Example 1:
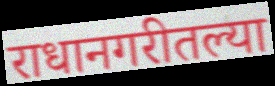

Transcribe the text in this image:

राधानगरीतल्या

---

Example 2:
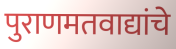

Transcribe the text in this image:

पुराणमतवाद्यांचे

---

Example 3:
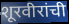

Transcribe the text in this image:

शूरवीरांची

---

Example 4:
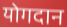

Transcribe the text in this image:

योगदान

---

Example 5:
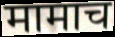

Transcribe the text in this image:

मामाच